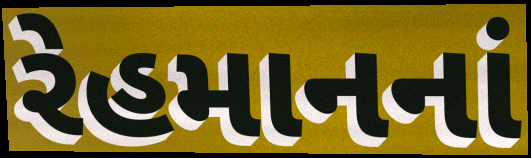
રેહમાનનાં